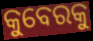
କୁବେରକୁ